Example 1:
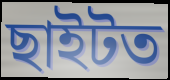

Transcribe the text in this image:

ছাইটত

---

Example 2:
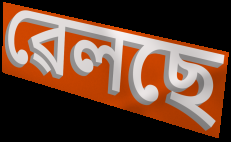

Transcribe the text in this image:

ৱেলছে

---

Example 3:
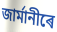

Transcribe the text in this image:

জাৰ্মানীৰে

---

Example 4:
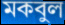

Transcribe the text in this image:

মকবুল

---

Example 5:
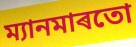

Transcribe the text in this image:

ম্যানমাৰতো